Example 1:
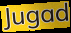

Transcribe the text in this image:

Jugad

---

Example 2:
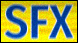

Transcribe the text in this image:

SFX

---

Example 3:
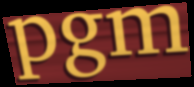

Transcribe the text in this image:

pgm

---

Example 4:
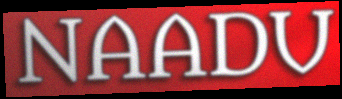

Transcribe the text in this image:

NAADU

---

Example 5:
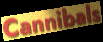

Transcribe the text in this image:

Cannibals